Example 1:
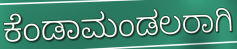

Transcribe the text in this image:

ಕೆಂಡಾಮಂಡಲರಾಗಿ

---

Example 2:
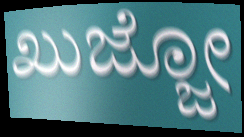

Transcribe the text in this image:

ಖುಜ್ಜೋ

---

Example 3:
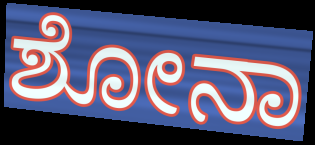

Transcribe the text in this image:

ಶೋನಾ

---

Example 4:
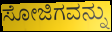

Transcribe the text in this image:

ಸೋಜಿಗವನ್ನು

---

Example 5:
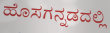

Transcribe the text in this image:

ಹೊಸಗನ್ನಡದಲ್ಲಿ